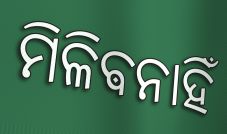
ମିଳିଵନାହିଁ